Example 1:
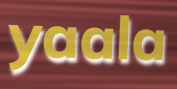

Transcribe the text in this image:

yaala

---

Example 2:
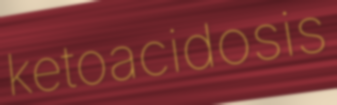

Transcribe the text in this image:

ketoacidosis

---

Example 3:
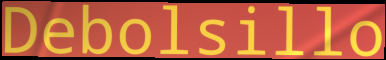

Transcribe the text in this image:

Debolsillo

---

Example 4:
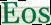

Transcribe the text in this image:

Eos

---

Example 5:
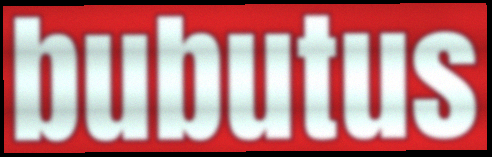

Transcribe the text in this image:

bubutus